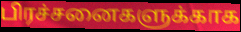
பிரச்சனைகளுக்காக